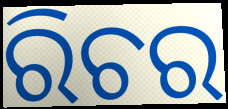
ରିଚର